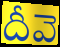
దీవె